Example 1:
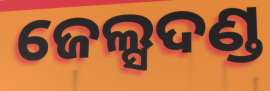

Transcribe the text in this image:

ଜେଲ୍ସଦଣ୍ଡ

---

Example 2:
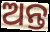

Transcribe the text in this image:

ଅନ୍ତ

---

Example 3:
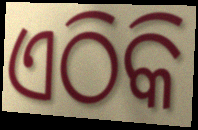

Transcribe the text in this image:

ଏଠିକି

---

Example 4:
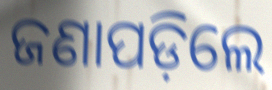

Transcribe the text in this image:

ଜଣାପଡ଼ିଲେ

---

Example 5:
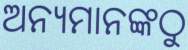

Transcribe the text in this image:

ଅନ୍ୟମାନଙ୍କଠୁ